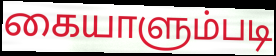
கையாளும்படி